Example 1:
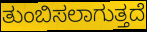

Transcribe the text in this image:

ತುಂಬಿಸಲಾಗುತ್ತದೆ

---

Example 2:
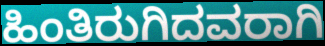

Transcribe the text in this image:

ಹಿಂತಿರುಗಿದವರಾಗಿ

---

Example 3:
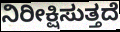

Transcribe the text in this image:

ನಿರೀಕ್ಷಿಸುತ್ತದೆ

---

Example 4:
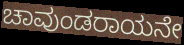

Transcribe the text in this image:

ಚಾವುಂಡರಾಯನೇ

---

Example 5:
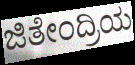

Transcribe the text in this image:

ಜಿತೇಂದ್ರಿಯ